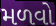
મળવો